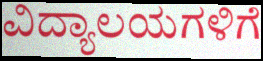
ವಿದ್ಯಾಲಯಗಳಿಗೆ